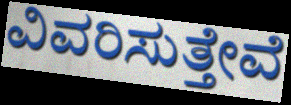
ವಿವರಿಸುತ್ತೇವೆ